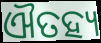
ଐତହ୍ୟ